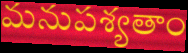
మనుపశ్యతాం